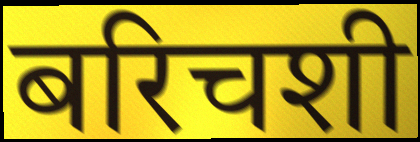
बरिचशी